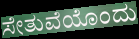
ಸೇತುವೆಯೊಂದು